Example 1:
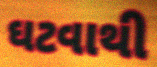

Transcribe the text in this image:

ઘટવાથી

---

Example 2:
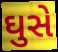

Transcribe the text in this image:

ઘુસે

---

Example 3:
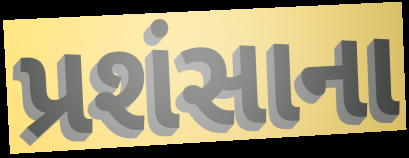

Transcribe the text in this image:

પ્રશંસાના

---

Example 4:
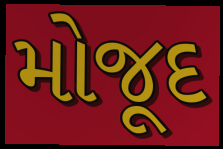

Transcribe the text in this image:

મોજૂદ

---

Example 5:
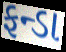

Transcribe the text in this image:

ફન્ડા